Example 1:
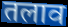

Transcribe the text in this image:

तलाव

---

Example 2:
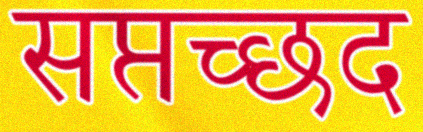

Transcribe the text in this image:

सप्तच्छद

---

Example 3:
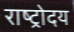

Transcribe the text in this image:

राष्ट्रोदय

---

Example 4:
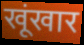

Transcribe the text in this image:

खूंखार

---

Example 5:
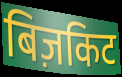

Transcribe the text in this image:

बिज़किट